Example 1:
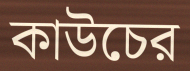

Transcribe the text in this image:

কাউচের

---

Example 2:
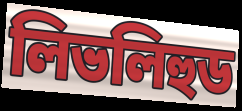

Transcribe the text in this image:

লিভলিহুড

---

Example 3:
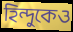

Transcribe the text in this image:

হিন্দুকেও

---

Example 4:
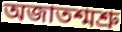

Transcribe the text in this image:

অজাতশ্মশ্রু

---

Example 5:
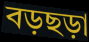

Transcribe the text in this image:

বড়ছড়া